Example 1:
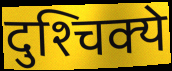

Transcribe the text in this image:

दुश्चिक्ये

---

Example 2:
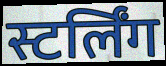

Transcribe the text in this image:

स्टर्लिंग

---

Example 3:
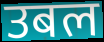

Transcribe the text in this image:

उबल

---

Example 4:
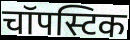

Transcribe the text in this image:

चॉपस्टिक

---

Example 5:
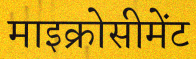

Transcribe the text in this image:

माइक्रोसीमेंट